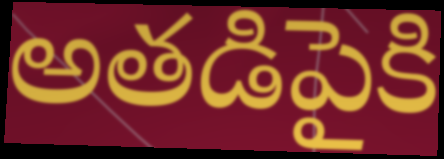
అతడిపైకి